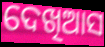
ଦେଖିଆସ